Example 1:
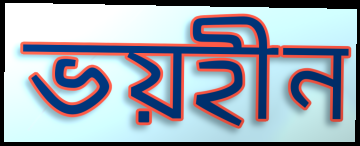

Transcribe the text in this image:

ভয়হীন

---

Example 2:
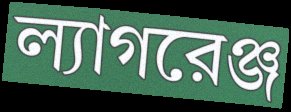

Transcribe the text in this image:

ল্যাগরেঞ্জ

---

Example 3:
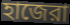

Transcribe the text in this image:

হাজেরা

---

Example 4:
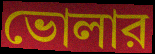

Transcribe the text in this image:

ভোলার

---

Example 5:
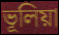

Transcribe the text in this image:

ভূলিয়া